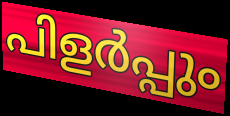
പിളർപ്പും